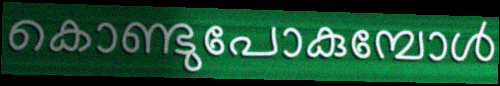
കൊണ്ടുപോകുമ്പോൾ